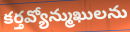
కర్తవ్యోన్ముఖులను